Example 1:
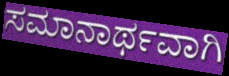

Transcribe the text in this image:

ಸಮಾನಾರ್ಥವಾಗಿ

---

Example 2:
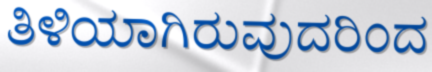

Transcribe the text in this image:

ತಿಳಿಯಾಗಿರುವುದರಿಂದ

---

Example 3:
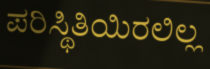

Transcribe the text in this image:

ಪರಿಸ್ಥಿತಿಯಿರಲಿಲ್ಲ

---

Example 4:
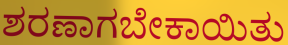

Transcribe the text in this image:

ಶರಣಾಗಬೇಕಾಯಿತು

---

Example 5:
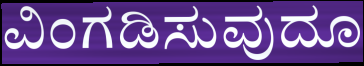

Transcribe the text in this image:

ವಿಂಗಡಿಸುವುದೂ